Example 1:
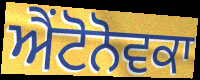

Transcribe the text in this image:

ਐਂਟੋਨੋਵਕਾ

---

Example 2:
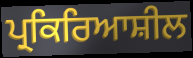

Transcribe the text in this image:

ਪ੍ਰਕਿਰਿਆਸ਼ੀਲ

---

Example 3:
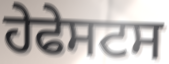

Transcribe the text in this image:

ਹੇਫੇਸਟਸ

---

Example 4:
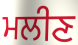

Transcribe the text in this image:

ਮਲੀਣ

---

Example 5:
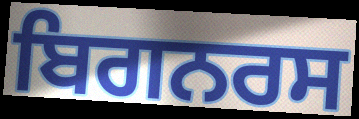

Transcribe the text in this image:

ਬਿਗਨਰਸ